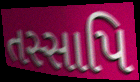
તસ્સાપિ